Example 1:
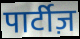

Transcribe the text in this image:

पार्टीज़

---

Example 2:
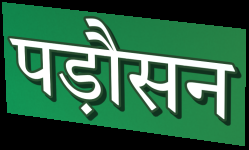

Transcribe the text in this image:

पड़ौसन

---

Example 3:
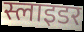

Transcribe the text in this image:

स्लाइडर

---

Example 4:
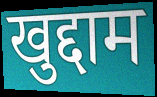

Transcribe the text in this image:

खुद्दाम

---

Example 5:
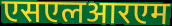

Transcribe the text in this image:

एसएलआरएम